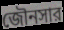
জৌনসার